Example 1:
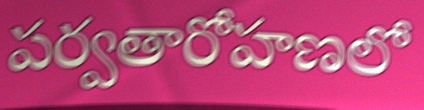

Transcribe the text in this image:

పర్వతారోహణలో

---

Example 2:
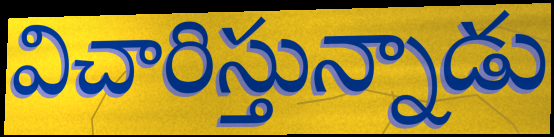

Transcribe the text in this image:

విచారిస్తున్నాడు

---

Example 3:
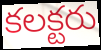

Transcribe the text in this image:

కలక్టరు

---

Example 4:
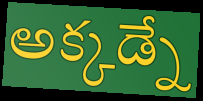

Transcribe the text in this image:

అక్కడ్నే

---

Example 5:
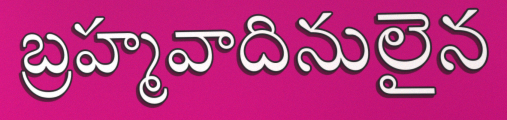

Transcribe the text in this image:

బ్రహ్మవాదినులైన